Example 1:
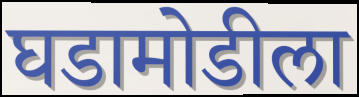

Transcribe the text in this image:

घडामोडीला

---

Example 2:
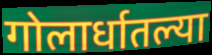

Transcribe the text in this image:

गोलार्धातल्या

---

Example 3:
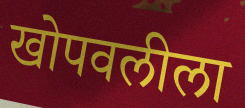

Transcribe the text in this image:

खोपवलीला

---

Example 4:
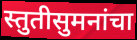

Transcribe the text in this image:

स्तुतीसुमनांचा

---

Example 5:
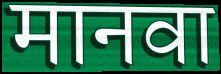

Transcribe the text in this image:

मानवा